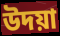
উদয়া